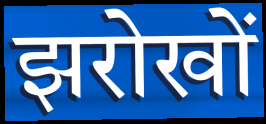
झरोखों